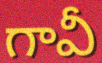
గావీ